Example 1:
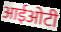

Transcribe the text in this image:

आईओटी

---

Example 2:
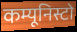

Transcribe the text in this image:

कम्यूनिस्टो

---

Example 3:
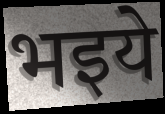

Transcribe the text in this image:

भइये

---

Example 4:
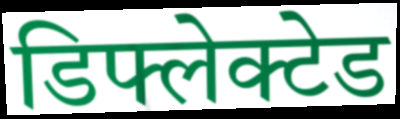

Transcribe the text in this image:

डिफ्लेक्टेड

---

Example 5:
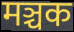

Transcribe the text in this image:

मञ्चक